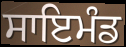
ਸਾਇਮੰਡ